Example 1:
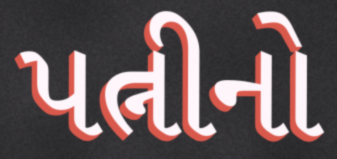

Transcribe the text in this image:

પત્નીનો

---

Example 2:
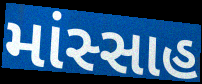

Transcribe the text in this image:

માંસ્સાહ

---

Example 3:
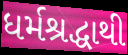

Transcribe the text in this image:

ધર્મશ્રદ્ધાથી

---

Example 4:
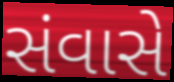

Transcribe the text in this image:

સંવાસે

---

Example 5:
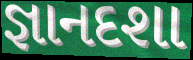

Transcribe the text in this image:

જ્ઞાનદશા